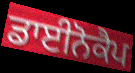
ਡਾਈਨੋਕੈਪ